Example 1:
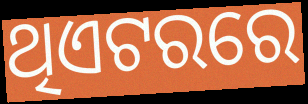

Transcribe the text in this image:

ଥିଏଟରରେ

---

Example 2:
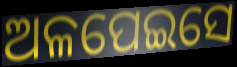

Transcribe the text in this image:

ଅଳପେଇସେ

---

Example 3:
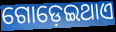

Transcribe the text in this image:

ଗୋଡ଼େଇଥାଏ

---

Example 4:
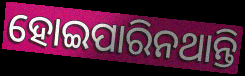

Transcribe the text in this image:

ହୋଇପାରିନଥାନ୍ତି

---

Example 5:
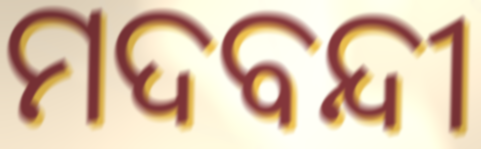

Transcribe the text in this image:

ମଦବନ୍ଦୀ